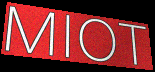
MIOT